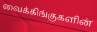
வைக்கிங்குகளின்